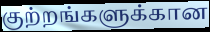
குற்றங்களுக்கான